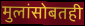
मुलांसोबतही